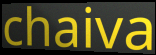
chaiva